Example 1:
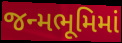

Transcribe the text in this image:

જન્મભૂમિમાં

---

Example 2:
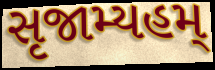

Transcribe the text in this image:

સૃજામ્યહમ્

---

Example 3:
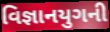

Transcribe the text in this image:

વિજ્ઞાનયુગની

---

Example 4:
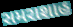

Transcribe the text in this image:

સમરાશાહ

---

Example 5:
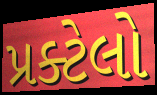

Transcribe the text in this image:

પ્રક્ટેલો